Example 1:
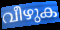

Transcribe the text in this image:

വീഴുക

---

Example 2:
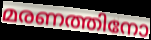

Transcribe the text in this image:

മരണത്തിനോ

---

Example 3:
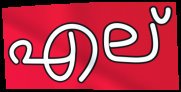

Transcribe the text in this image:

എല്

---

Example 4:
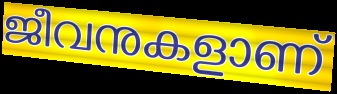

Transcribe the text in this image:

ജീവനുകളാണ്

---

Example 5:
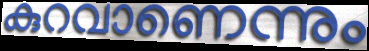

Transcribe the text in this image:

കുറവാണെന്നും